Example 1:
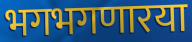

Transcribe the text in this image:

भगभगणारया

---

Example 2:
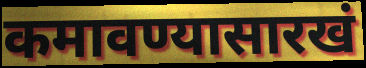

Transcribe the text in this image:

कमावण्यासारखं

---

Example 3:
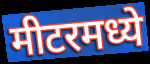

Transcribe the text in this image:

मीटरमध्ये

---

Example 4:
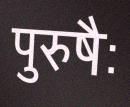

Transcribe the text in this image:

पुरुषैः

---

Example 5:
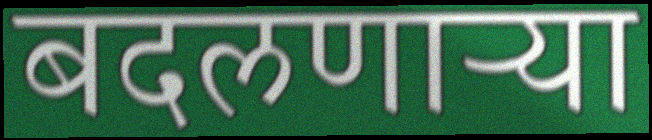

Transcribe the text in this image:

बदलणाऱ्या